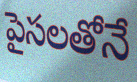
పైసలతోనే